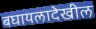
बघायलादेखील